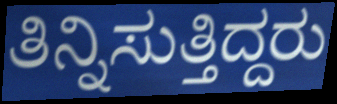
ತಿನ್ನಿಸುತ್ತಿದ್ದರು